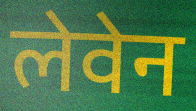
लेवेन